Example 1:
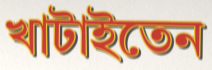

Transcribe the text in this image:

খাটাইতেন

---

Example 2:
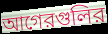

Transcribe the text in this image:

আগেরগুলির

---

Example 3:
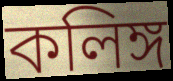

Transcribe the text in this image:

কলিঙ্গ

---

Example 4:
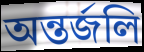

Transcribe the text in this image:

অন্তর্জলি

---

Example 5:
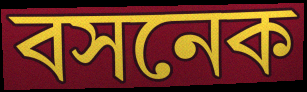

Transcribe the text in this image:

বসনেক